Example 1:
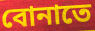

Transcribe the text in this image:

বোনাতে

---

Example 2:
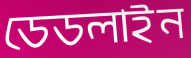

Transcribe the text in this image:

ডেডলাইন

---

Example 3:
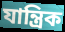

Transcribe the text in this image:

যান্ত্রিক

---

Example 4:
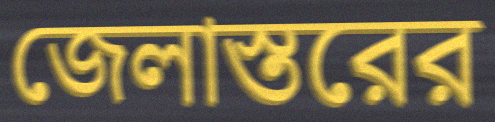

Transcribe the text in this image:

জেলাস্তরের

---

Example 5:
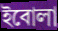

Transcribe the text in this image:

ইবোলা